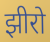
झीरो